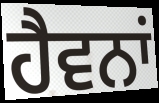
ਹੈਵਨਾਂ